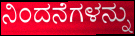
ನಿಂದನೆಗಳನ್ನು